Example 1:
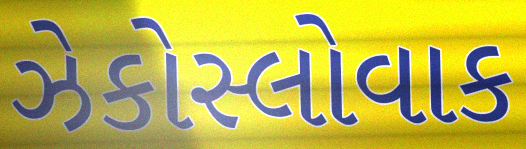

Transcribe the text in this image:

ઝેકોસ્લોવાક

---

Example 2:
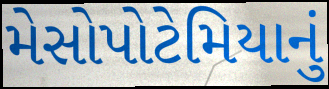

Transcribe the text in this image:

મેસોપોટેમિયાનું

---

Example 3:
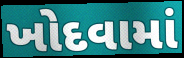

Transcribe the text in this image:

ખોદવામાં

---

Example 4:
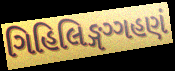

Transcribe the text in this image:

ગિહિલિઙ્ગગ્ગહણં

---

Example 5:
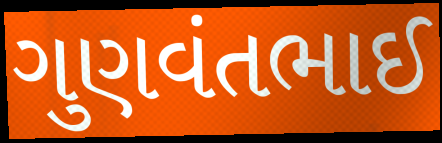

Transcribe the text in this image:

ગુણવંતભાઈ